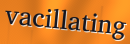
vacillating